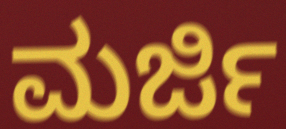
ಮರ್ಜಿ